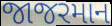
જાજરમાન